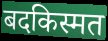
बदकिस्मत